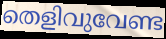
തെളിവുവേണ്ട